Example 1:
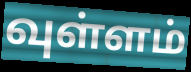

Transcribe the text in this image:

வுள்ளம்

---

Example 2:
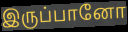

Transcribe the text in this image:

இருப்பானோ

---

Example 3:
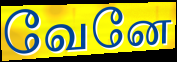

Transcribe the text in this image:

வேனே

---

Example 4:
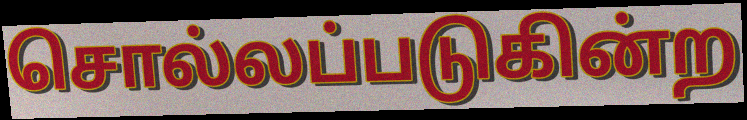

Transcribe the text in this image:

சொல்லப்படுகின்ற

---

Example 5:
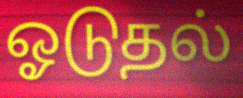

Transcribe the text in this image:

ஓடுதல்